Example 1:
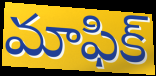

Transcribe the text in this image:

మాఫిక్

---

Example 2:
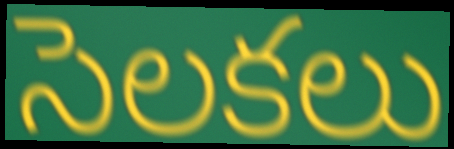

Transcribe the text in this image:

సెలకలు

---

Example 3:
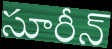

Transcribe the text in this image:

సూరీన్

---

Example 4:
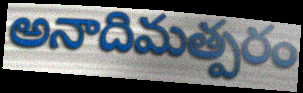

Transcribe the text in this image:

అనాదిమత్పరం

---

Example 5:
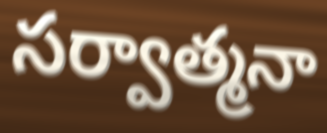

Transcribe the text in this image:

సర్వాత్మనా